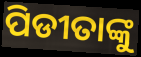
ପିଡୀତାଙ୍କୁ